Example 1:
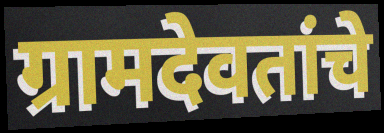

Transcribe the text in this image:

ग्रामदेवतांचे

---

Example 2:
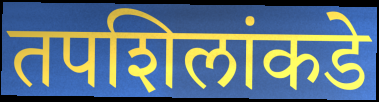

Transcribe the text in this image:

तपशिलांकडे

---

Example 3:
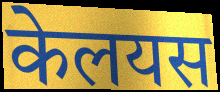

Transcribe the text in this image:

केलयस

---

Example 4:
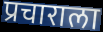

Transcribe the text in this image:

प्रचाराला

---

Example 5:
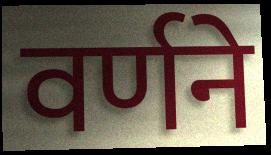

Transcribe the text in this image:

वर्णने